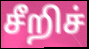
சீறிச்